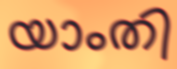
യാംതി